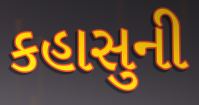
કહાસુની